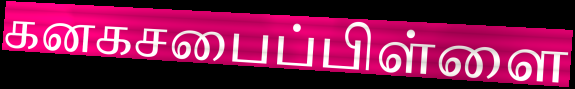
கனகசபைப்பிள்ளை